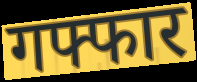
गफ्फार